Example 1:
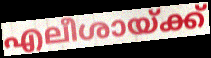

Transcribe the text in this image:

എലീശായ്ക്ക്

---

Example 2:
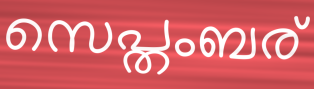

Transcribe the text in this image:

സെപ്തംബര്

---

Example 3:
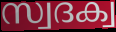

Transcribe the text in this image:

സ്വദക്വ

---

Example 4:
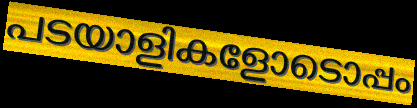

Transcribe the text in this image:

പടയാളികളോടൊപ്പം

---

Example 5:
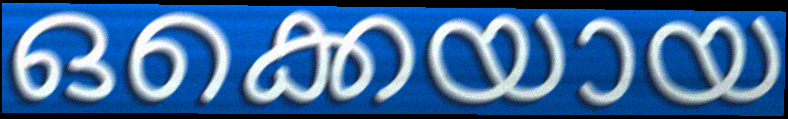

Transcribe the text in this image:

ഒക്കെയായ